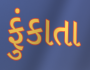
ફુંકાતા